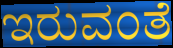
ಇರುವಂತೆ